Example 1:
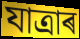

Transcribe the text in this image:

যাত্ৰাৰ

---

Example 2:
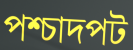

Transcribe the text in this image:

পশ্চাদপট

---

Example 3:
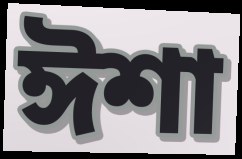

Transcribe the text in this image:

ঈশা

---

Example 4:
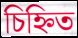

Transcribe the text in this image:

চিহ্নিত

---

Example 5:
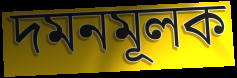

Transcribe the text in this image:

দমনমূলক